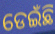
ଡେଇଁଛି